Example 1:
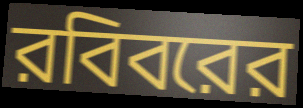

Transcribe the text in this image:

রবিবরের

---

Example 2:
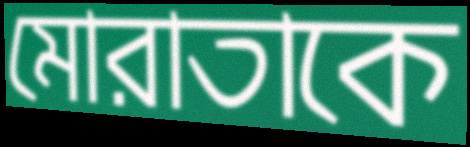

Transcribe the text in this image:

মোরাতাকে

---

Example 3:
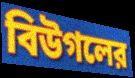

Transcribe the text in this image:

বিউগলের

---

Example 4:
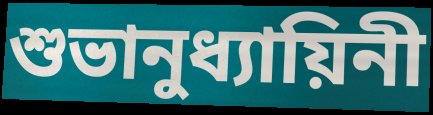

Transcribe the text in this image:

শুভানুধ্যায়িনী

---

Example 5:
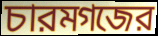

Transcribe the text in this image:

চারমগজের